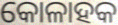
କୋଳାହକ